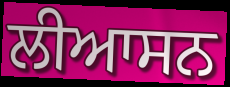
ਲੀਆਸਨ